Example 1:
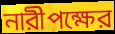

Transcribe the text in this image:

নারীপক্ষের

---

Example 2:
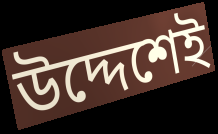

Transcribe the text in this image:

উদ্দেশেই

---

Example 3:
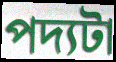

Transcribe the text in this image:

পদ্যটা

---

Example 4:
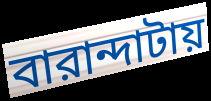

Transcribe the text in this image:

বারান্দাটায়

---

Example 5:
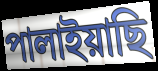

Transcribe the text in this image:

পালাইয়াছি